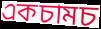
একচামচ